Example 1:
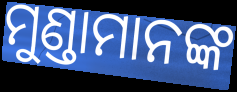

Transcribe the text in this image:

ମୁଣ୍ଡାମାନଙ୍କ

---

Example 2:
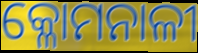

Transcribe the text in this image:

କ୍ଳୋମନାଳୀ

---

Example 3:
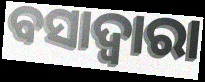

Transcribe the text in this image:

ବସାଦ୍ୱାରା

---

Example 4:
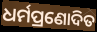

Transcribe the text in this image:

ଧର୍ମପ୍ରଣୋଦିତ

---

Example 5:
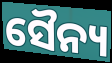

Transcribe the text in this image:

ସୈନ୍ୟ